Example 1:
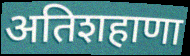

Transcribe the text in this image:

अतिशहाणा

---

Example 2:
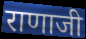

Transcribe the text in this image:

राणाजी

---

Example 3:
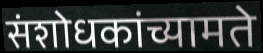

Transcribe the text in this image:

संशोधकांच्यामते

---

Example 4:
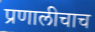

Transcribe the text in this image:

प्रणालीचाच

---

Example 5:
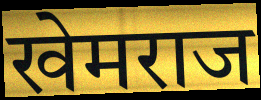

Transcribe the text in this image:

खेमराज